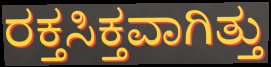
ರಕ್ತಸಿಕ್ತವಾಗಿತ್ತು